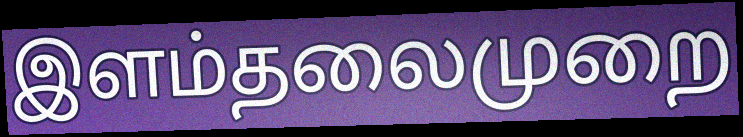
இளம்தலைமுறை